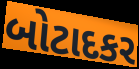
બોટાદકર